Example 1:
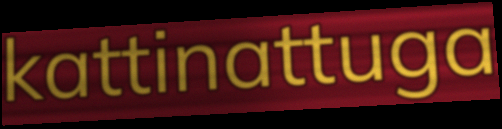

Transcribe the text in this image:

kattinattuga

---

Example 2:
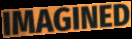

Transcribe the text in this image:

IMAGINED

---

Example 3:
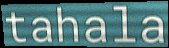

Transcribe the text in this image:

tahala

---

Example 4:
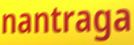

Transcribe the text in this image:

nantraga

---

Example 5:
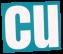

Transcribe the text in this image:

cu